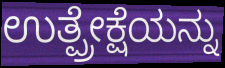
ಉತ್ಪ್ರೇಕ್ಷೆಯನ್ನು